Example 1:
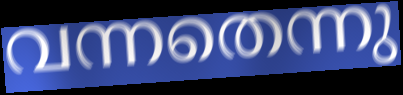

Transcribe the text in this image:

വന്നതെന്നു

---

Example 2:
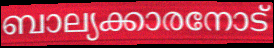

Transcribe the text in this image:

ബാല്യക്കാരനോട്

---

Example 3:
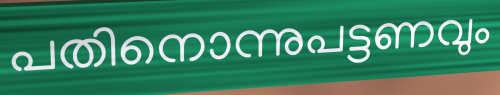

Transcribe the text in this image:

പതിനൊന്നുപട്ടണവും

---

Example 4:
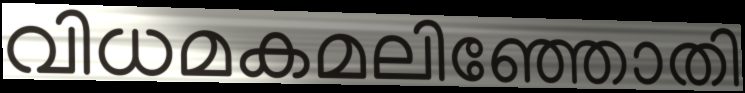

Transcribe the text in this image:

വിധമകമലിഞ്ഞോതി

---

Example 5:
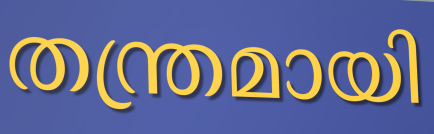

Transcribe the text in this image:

തന്ത്രമായി